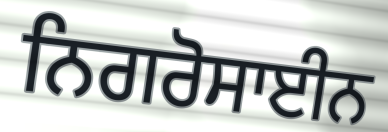
ਨਿਗਰੋਸਾਈਨ